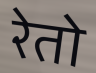
रेतो